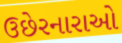
ઉછેરનારાઓ